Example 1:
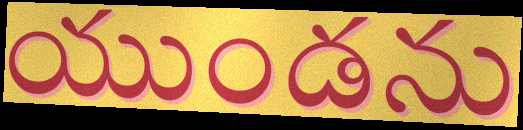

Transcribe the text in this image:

యుండను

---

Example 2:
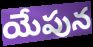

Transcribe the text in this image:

యేపున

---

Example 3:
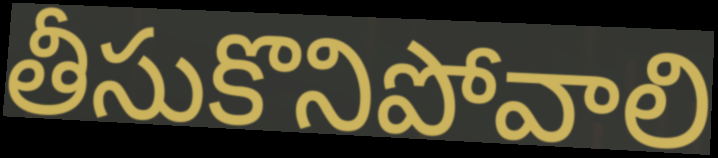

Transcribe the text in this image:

తీసుకొనిపోవాలి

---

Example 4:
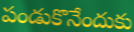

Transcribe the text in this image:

పండుకొనేందుకు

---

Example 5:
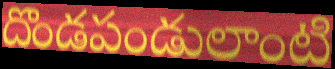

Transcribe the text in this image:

దొండపండులాంటి